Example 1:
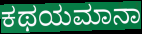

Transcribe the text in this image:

ಕಥಯಮಾನಾ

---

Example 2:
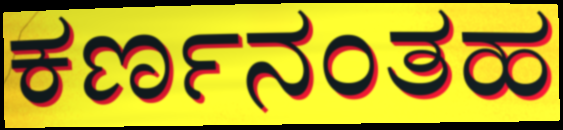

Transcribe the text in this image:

ಕರ್ಣನಂತಹ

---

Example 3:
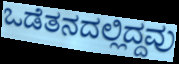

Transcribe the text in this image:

ಒಡೆತನದಲ್ಲಿದ್ದವು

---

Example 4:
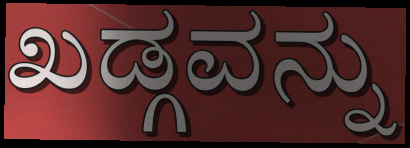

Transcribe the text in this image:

ಖಡ್ಗವನ್ನು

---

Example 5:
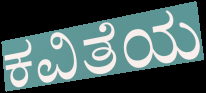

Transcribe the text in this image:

ಕವಿತೆಯ